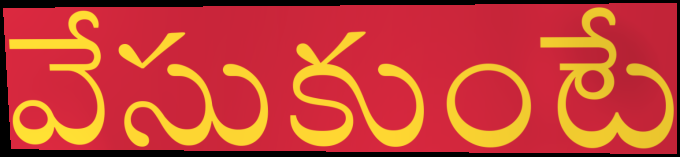
వేసుకుంటే